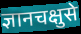
ज्ञानचक्षुसे